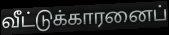
வீட்டுக்காரனைப்